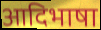
आदिभाषा